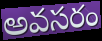
అవసరం